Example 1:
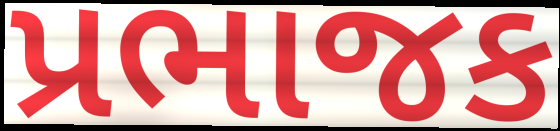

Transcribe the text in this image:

પ્રભાજક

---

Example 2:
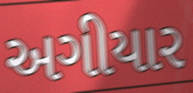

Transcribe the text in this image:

અગીયાર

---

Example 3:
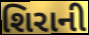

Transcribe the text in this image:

શિરાની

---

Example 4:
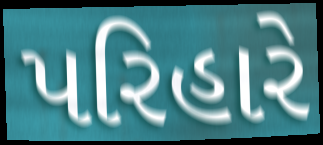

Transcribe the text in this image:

પરિહારે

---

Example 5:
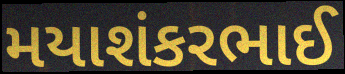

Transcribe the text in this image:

મયાશંકરભાઈ